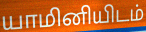
யாமினியிடம்